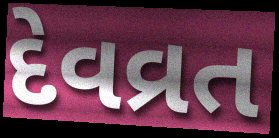
દેવવ્રત